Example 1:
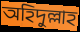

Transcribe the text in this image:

অহিদুল্লাহ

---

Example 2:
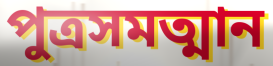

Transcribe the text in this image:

পুত্রসমত্মান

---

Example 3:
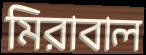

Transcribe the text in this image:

মিরাবাল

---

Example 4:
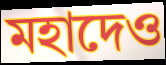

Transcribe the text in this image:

মহাদেও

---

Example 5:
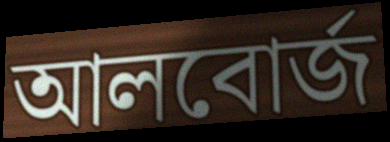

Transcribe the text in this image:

আলবোর্জ